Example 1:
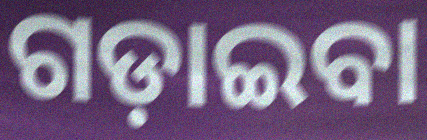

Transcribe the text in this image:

ଗଡ଼ାଇବା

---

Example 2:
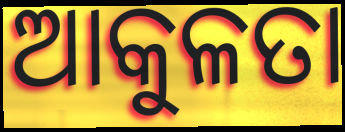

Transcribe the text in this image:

ଆକୁଳତା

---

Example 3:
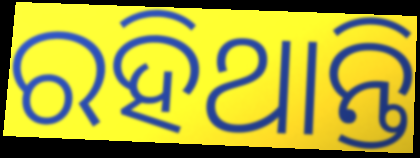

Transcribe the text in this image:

ରହିଥାନ୍ତି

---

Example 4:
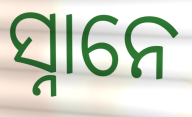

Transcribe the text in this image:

ସ୍ନାନେ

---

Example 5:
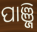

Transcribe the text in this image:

ପାଞ୍ଜି